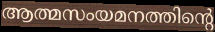
ആത്മസംയമനത്തിന്റെ